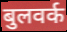
बुलवर्क